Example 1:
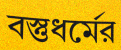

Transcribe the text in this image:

বস্তুধর্মের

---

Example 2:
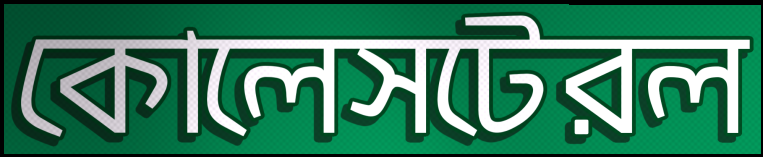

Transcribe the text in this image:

কোলেসটেরল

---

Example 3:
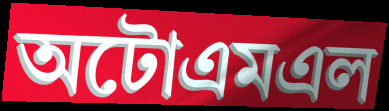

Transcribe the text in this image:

অটোএমএল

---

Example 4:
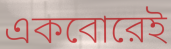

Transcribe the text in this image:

একবোরেই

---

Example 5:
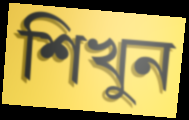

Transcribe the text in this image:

শিখুন